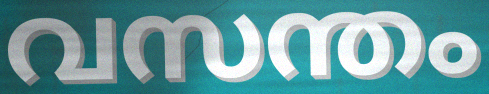
വസന്തം